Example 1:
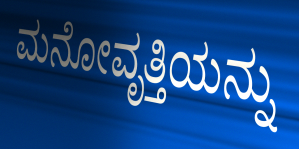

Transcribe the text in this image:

ಮನೋವೃತ್ತಿಯನ್ನು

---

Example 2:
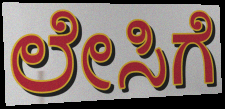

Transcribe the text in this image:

ಲೇಸಿಗೆ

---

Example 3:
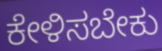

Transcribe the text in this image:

ಕೇಳಿಸಬೇಕು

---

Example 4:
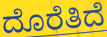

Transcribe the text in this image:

ದೊರೆತಿದೆ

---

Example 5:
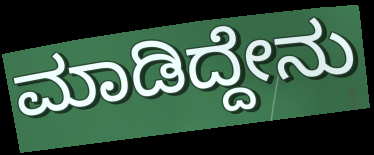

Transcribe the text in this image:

ಮಾಡಿದ್ದೇನು